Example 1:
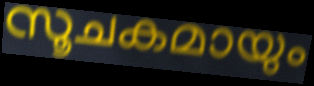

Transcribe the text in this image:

സൂചകമായും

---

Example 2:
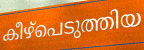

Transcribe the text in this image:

കീഴ്പെടുത്തിയ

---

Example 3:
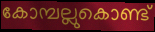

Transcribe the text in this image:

കോമ്പല്ലുകൊണ്ട്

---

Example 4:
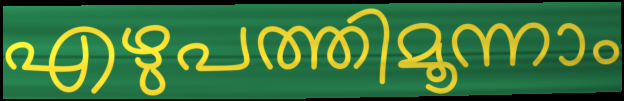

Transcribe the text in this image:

എഴുപത്തിമൂന്നാം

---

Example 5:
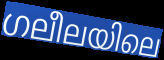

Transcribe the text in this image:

ഗലീലയിലെ